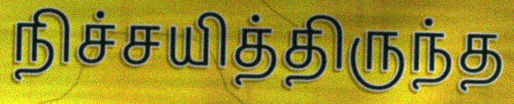
நிச்சயித்திருந்த